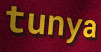
tunya